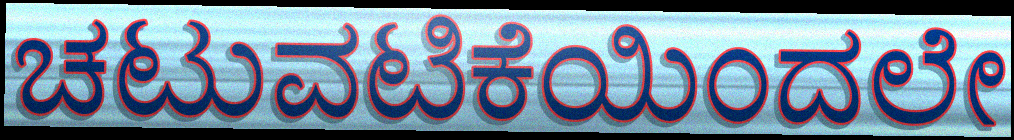
ಚಟುವಟಿಕೆಯಿಂದಲೇ